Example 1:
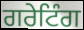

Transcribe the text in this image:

ਗਰੇਟਿੰਗ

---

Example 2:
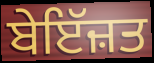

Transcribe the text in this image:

ਬੇਇੱਜ਼ਤ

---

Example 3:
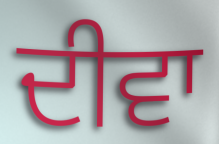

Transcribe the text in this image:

ਦੀਵਾ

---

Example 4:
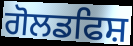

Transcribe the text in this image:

ਗੋਲਡਫਿਸ਼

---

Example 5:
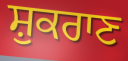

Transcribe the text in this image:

ਸ਼ੁਕਰਾਣ